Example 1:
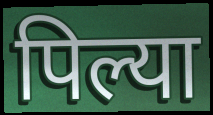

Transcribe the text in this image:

पिल्या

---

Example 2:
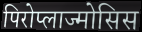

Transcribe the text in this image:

पिरोप्लाज्मोसिस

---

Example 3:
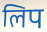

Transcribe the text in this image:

लिप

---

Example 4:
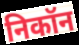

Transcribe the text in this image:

निकॉन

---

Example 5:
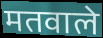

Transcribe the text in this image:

मतवाले